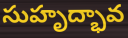
సుహృద్భావ